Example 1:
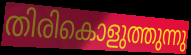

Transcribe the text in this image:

തിരികൊളുത്തുന്നു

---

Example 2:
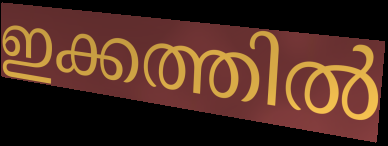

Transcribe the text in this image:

ഇക്കത്തിൽ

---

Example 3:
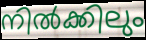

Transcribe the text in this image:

നിൽക്കിലും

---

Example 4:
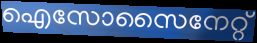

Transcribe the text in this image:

ഐസോസൈനേറ്റ്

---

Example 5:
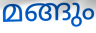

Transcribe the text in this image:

മങ്ങും